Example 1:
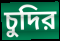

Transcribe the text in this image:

চুদির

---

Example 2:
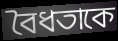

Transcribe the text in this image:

বৈধতাকে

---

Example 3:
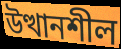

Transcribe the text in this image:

উত্থানশীল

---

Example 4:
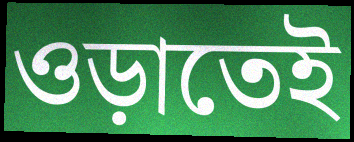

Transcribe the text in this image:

ওড়াতেই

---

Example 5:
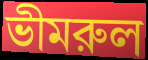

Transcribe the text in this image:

ভীমরুল